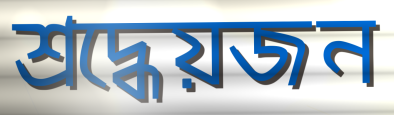
শ্রদ্ধেয়জন